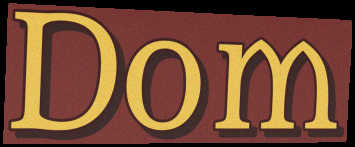
Dom